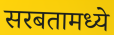
सरबतामध्ये